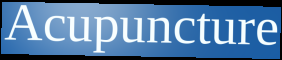
Acupuncture